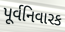
પૂર્વનિવારક